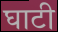
घाटी